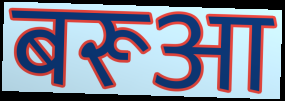
बरूआ